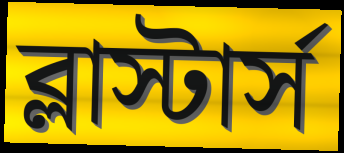
ব্লাস্টার্স